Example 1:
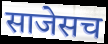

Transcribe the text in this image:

साजेसच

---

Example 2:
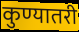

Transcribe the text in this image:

कुण्यातरी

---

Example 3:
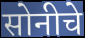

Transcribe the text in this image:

सोनीचे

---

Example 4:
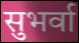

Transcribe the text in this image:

सुभर्वा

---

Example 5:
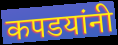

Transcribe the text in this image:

कपडयांनी